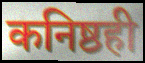
कनिष्ठही